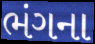
ભંગના